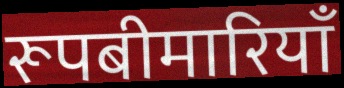
रूपबीमारियाँ